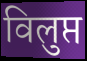
विलुप्त